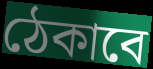
ঠেকাবে